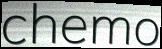
chemo